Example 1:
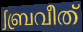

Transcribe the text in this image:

ഽബ്രവീത്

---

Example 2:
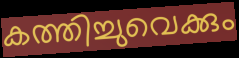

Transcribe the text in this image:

കത്തിച്ചുവെക്കും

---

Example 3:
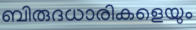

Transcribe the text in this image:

ബിരുദധാരികളെയും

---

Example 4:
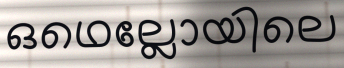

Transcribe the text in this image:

ഒഥെല്ലോയിലെ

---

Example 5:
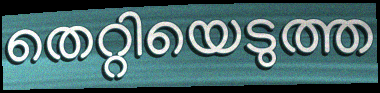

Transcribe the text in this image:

തെറ്റിയെടുത്ത